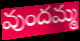
వుందమ్మ